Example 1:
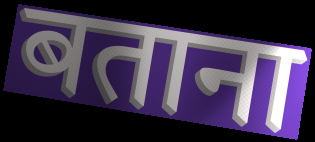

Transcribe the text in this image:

बताना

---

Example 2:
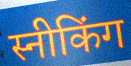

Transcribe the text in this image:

स्नीकिंग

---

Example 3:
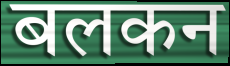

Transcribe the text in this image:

बलकन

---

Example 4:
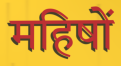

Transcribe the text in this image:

महिषों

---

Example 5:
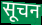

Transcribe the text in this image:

सूचन